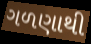
ગળણાથી